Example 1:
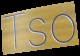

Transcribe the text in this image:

Tso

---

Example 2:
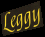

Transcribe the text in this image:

Leggy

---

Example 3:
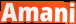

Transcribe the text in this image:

Amani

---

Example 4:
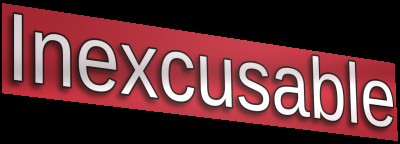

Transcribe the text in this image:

Inexcusable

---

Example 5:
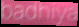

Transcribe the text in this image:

badhiya